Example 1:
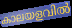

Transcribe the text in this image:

കാലയളവിൽ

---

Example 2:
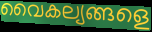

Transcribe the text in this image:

വൈകല്യങ്ങളെ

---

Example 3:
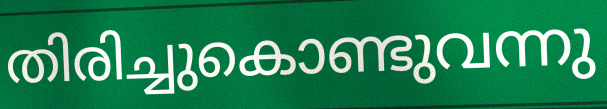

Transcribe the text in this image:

തിരിച്ചുകൊണ്ടുവന്നു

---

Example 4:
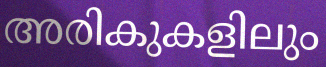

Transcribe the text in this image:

അരികുകളിലും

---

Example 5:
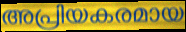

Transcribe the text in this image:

അപ്രിയകരമായ